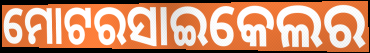
ମୋଟରସାଇକେଲର